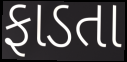
ફાડતા